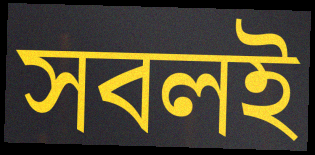
সবলই